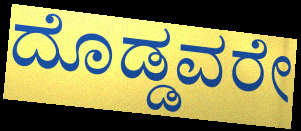
ದೊಡ್ಡವರೇ